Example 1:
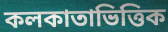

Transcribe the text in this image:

কলকাতাভিত্তিক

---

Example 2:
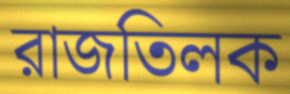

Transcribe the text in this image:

রাজতিলক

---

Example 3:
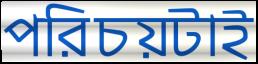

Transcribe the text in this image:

পরিচয়টাই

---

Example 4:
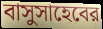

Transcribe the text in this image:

বাসুসাহেবের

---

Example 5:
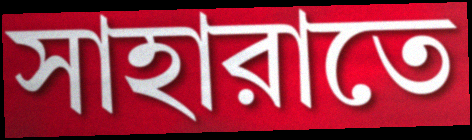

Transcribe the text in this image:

সাহারাতে